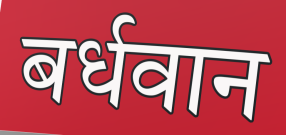
बर्धवान